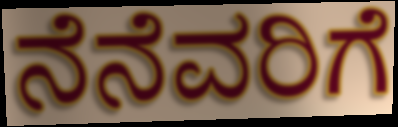
ನೆನೆವರಿಗೆ